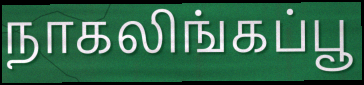
நாகலிங்கப்பூ